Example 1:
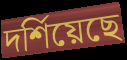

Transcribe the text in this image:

দর্শিয়েছে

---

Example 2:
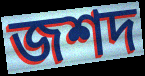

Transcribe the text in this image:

জশদ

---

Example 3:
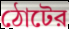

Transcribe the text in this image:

ঠোটের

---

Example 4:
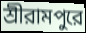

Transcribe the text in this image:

শ্রীরামপুরে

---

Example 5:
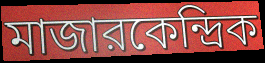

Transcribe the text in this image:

মাজারকেন্দ্রিক